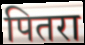
पितरा